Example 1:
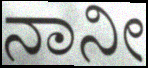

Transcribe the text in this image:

ನಾನೀ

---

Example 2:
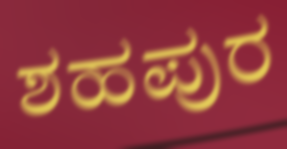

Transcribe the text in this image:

ಶಹಪುರ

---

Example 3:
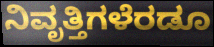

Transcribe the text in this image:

ನಿವೃತ್ತಿಗಳೆರಡೂ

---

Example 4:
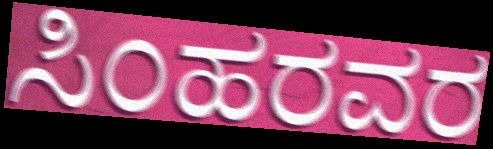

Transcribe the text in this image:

ಸಿಂಹರವರ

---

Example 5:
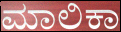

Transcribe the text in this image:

ಮಾಲಿಕಾ